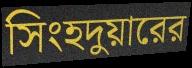
সিংহদুয়ারের